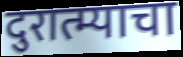
दुरात्म्याचा